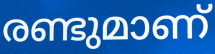
രണ്ടുമാണ്